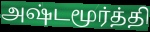
அஷ்டமூர்த்தி